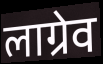
लाग्रेव